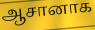
ஆசானாக